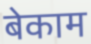
बेकाम